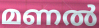
മണൽ